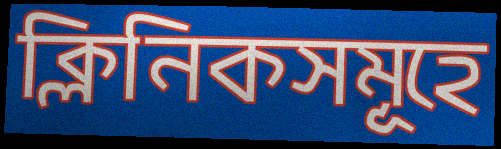
ক্লিনিকসমূহে